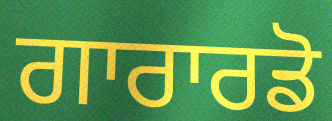
ਗਾਰਾਰਡੋ